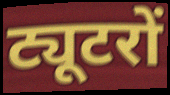
ट्यूटरों